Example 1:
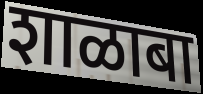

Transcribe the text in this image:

शाळाबा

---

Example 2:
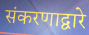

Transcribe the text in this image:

संकरणाद्वारे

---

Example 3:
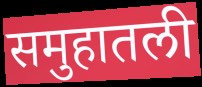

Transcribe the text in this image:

समुहातली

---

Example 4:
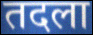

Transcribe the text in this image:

तदला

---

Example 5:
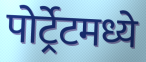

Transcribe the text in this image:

पोर्ट्रेटमध्ये